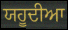
ਯਹੂਦੀਆ